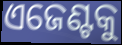
ଏଜେଣ୍ଟକୁ